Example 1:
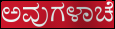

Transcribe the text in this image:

ಅವುಗಳಾಚೆ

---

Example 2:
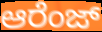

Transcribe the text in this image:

ಆರೆಂಜ್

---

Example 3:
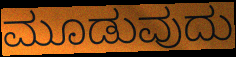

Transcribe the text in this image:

ಮೂಡುವುದು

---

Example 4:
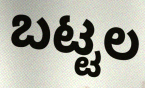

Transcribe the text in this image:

ಬಟ್ಟಲ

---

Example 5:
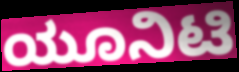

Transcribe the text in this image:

ಯೂನಿಟಿ